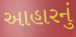
આહારનું